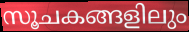
സൂചകങ്ങളിലും